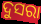
ଦୁସରା